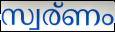
സ്വര്ണം